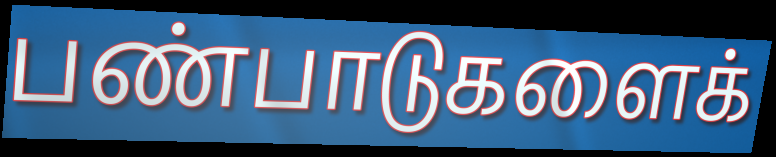
பண்பாடுகளைக்